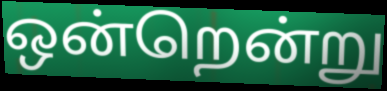
ஒன்றென்று